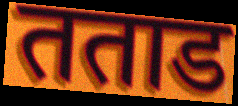
तताड